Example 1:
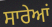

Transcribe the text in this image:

ਸਾਰੇਆਂ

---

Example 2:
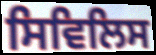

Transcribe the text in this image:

ਸਿਵਿਲਿਸ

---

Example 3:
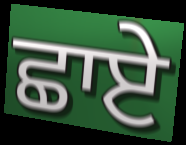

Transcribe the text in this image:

ਛਾਏ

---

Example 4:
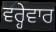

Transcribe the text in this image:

ਵਰ੍ਹੇਵਾਰ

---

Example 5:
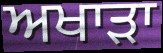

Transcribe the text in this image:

ਅਖਾੜਾ